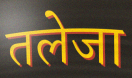
तलेजा